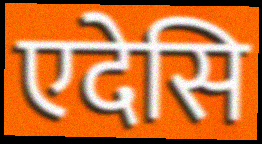
एदेसि